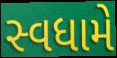
સ્વધામે